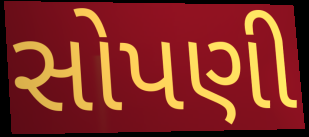
સોપણી